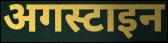
अगस्टाइन